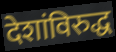
देशांविरुद्ध